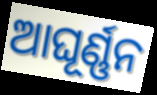
ଆଘୂର୍ଣ୍ଣନ